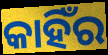
କାହିଁର